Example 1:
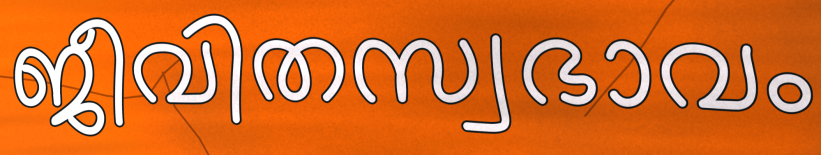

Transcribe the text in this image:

ജീവിതസ്വഭാവം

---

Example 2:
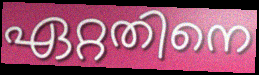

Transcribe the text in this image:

ഏറ്റതിനെ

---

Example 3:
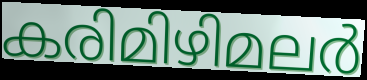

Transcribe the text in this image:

കരിമിഴിമലർ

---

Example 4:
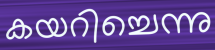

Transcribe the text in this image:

കയറിച്ചെന്നു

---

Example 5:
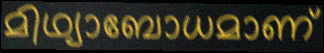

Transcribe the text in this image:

മിഥ്യാബോധമാണ്